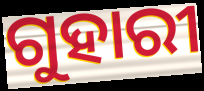
ଗୁହାରୀ